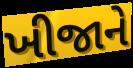
ખીજાને